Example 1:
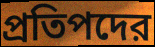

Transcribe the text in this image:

প্রতিপদের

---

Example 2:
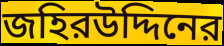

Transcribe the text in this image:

জহিরউদ্দিনের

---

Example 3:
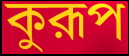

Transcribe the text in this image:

কুরূপ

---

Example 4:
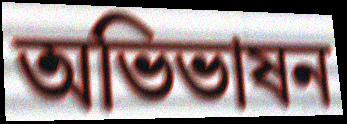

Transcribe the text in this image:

অভিভাষন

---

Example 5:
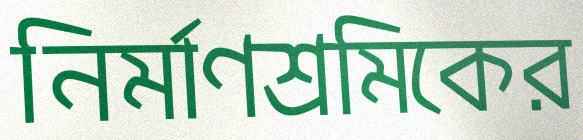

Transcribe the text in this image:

নির্মাণশ্রমিকের